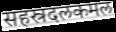
सहस्रदलकमल